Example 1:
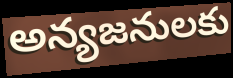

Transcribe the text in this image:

అన్యజనులకు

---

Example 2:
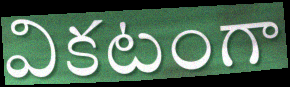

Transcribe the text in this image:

వికటంగా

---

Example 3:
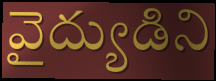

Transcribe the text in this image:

వైద్యుడిని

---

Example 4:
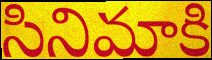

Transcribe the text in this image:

సినిమాకి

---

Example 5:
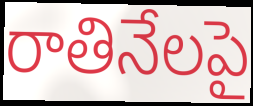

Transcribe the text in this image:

రాతినేలపై